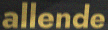
allende